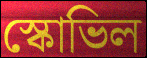
স্কোভিল